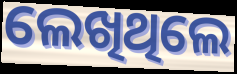
ଲେଖିଥିଲେ